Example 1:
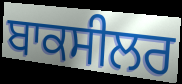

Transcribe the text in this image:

ਬਾਕਸੀਲਰ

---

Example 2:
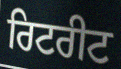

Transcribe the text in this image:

ਰਿਟਰੀਟ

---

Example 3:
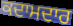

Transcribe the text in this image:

ਕਦਾਮਦਾਰ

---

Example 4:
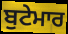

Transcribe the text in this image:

ਬੁਟੇਮਾਰ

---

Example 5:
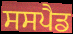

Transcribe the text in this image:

ਸਸਪੈਡ